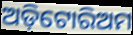
ଅଡ଼ିଟୋରିଅମ